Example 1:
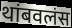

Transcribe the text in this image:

थांबवलंस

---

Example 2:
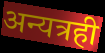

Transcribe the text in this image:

अन्यत्रही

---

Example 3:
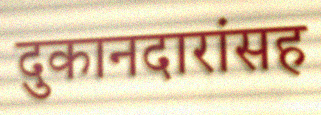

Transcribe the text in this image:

दुकानदारांसह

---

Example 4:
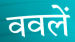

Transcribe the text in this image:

ववलें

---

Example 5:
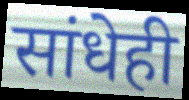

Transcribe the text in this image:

सांधेही